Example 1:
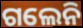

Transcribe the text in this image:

ଗଲେନି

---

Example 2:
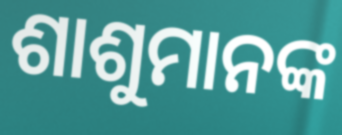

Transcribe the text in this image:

ଶାଶୁମାନଙ୍କ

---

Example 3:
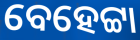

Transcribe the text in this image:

ବେହେଟ୍ଟା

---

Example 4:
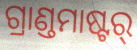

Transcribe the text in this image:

ଗ୍ରାଣ୍ଡମାଷ୍ଟର୍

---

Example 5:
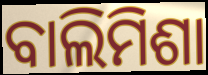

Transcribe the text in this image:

ବାଲିମିଶା